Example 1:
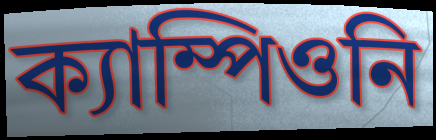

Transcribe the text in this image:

ক্যাম্পিওনি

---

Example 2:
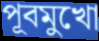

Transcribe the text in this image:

পূবমুখো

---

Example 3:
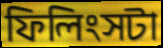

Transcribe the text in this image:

ফিলিংসটা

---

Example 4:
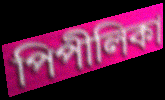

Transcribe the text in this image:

পিপীলিকা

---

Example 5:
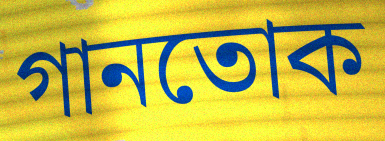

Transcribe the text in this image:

গানতোক